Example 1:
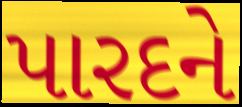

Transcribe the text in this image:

પારદને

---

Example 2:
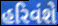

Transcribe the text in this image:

હરિવંશે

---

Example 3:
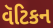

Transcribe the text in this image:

વૅટિકન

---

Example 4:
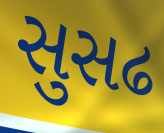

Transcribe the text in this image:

સુસઢ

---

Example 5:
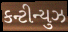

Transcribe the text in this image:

કન્ટીન્યુઝ